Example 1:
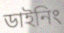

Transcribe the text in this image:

ডাইনিং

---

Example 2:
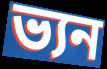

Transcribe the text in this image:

ভ্যন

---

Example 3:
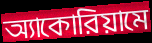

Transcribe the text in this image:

অ্যাকোরিয়ামে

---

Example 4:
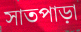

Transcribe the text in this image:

সাতপাড়া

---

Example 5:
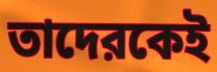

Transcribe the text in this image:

তাদেরকেই